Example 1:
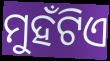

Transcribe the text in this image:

ମୁହଁଟିଏ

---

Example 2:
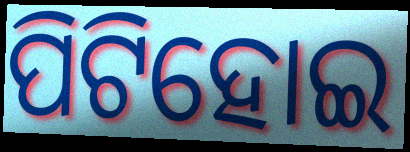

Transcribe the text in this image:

ପିଟିହୋଇ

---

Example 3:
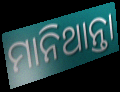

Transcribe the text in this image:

ମାନିଥାନ୍ତା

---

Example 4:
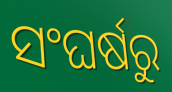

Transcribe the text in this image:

ସଂଘର୍ଷରୁ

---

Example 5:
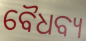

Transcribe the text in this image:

ବୈଧବ୍ୟ